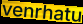
venrhatu